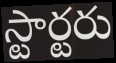
స్టార్టరు